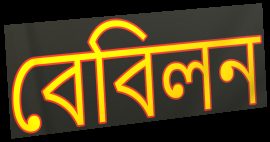
বেবিলন